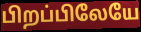
பிறப்பிலேயே